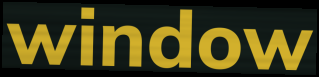
window